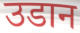
उडान